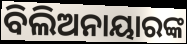
ବିଲିଅନାୟାରଙ୍କ